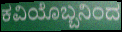
ಕವಿಯೊಬ್ಬನಿಂದ